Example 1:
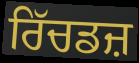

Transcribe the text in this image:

ਰਿੱਚਡਜ਼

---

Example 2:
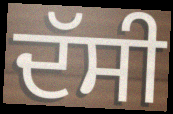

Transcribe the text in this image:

ਦੱਸੀ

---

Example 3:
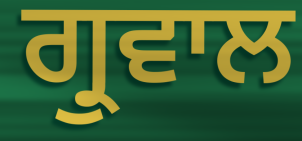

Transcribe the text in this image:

ਗ੍ਰੁਵਾਲ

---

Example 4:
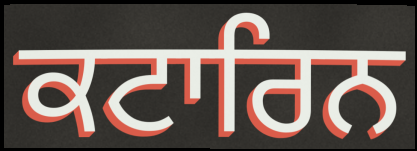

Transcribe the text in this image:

ਕਟਾਰਿਨ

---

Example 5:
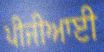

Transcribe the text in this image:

ਪੀਜੀਆਈ